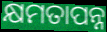
କ୍ଷମତାପନ୍ନ